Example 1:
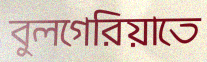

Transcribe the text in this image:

বুলগেরিয়াতে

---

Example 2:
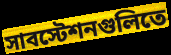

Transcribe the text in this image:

সাবস্টেশনগুলিতে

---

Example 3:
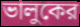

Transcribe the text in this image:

ভালুকের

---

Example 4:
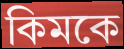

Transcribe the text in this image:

কিমকে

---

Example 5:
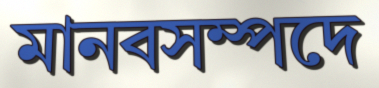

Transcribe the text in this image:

মানবসম্পদে